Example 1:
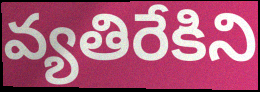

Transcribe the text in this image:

వ్యతిరేకిని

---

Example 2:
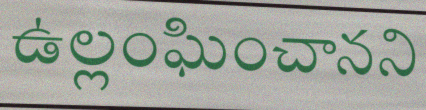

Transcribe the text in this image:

ఉల్లంఘించానని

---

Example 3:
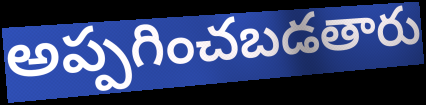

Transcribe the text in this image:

అప్పగించబడతారు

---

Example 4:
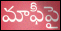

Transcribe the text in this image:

మాఫీపై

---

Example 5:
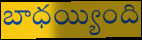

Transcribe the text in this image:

బాధయ్యింది